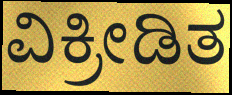
ವಿಕ್ರೀಡಿತ